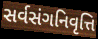
સર્વસંગનિવૃત્તિ